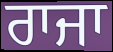
ਰਾਜਾ